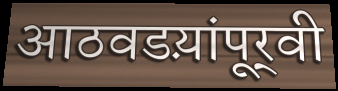
आठवडय़ांपूर्वी